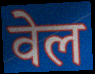
वेल